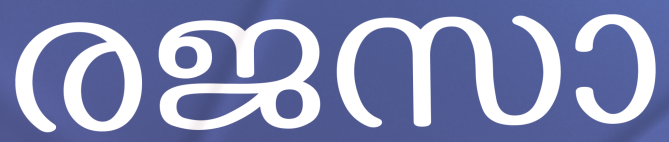
രജസാ